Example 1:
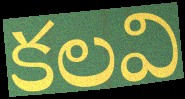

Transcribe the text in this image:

కలవి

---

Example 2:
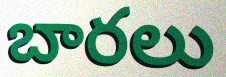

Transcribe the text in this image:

బారలు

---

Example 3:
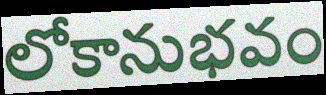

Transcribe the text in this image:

లోకానుభవం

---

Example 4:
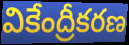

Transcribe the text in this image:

వికేంద్రీకరణ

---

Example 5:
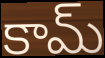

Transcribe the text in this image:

కామ్